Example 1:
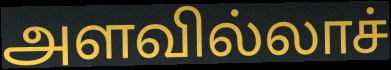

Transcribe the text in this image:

அளவில்லாச்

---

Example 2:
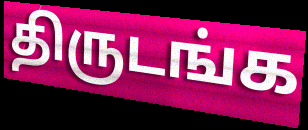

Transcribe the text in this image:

திருடங்க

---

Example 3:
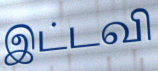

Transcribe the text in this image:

இட்டவி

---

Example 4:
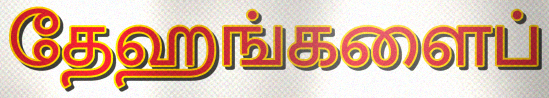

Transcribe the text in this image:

தேஹங்களைப்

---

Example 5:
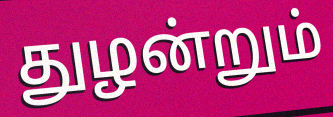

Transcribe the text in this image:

துழன்றும்